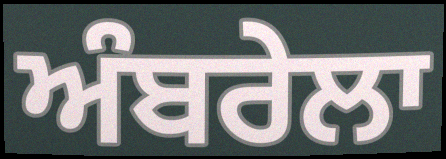
ਅੰਬਰੇਲਾ